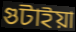
গুটাইয়া